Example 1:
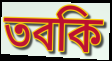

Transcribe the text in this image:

তবকি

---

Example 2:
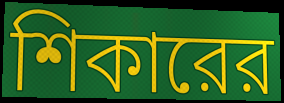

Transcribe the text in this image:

শিকারের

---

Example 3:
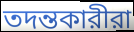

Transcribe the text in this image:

তদন্তকারীরা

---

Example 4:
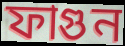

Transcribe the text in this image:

ফাগুন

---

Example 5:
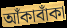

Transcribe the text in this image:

আঁকাবাঁকা